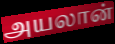
அயலான்